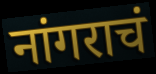
नांगराचं